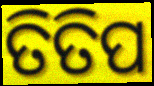
ତିତିପ